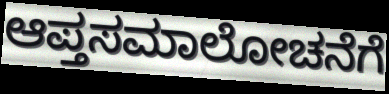
ಆಪ್ತಸಮಾಲೋಚನೆಗೆ